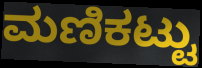
ಮಣಿಕಟ್ಟು